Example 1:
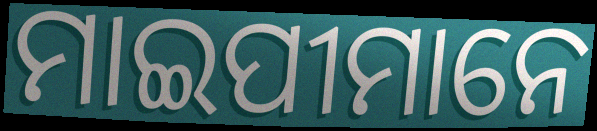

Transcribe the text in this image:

ମାଇପୀମାନେ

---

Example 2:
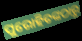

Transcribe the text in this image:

ପୁରୋହିତଙ୍କଠାରୁ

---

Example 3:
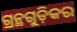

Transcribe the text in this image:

ଗ୍ରନ୍ଥଗୁଡ଼ିକର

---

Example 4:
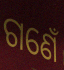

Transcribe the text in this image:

ଗଣେଁ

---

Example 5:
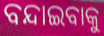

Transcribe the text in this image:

ବନ୍ଦାଇବାକୁ